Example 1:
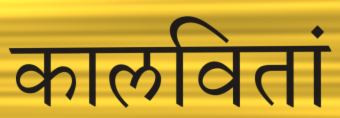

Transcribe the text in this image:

कालवितां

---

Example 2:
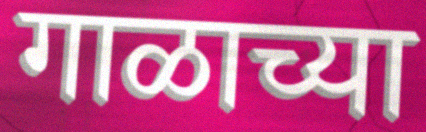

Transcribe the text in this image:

गाळाच्या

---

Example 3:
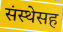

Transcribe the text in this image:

संस्थेसह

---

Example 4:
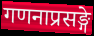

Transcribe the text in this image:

गणनाप्रसङ्गे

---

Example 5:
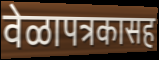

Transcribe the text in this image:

वेळापत्रकासह